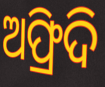
ଅଫ୍ରିଦି